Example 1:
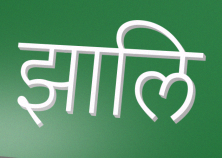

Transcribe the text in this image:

झालि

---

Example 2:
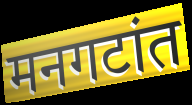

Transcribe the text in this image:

मनगटांत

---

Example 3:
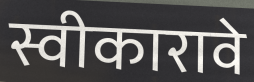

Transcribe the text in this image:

स्वीकारावे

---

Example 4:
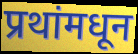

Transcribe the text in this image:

प्रथांमधून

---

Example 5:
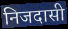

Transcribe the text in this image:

निजदासी